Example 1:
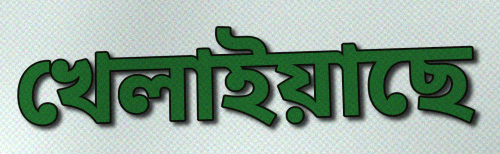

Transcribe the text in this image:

খেলাইয়াছে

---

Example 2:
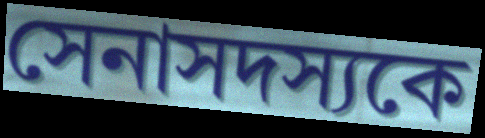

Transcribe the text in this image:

সেনাসদস্যকে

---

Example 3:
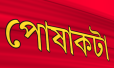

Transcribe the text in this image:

পোষাকটা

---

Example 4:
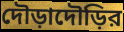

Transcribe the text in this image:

দৌড়াদৌড়ির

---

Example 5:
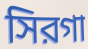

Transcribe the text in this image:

সিরগা